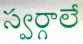
స్వర్గాలే